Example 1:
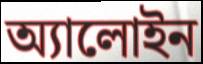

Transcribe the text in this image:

অ্যালোইন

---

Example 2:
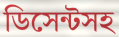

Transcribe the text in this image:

ডিসেন্টসহ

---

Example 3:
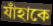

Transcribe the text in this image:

যাঁহাকে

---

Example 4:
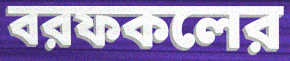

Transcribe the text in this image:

বরফকলের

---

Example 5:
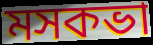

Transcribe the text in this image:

মসকভা